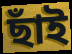
ছাঁই